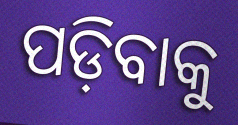
ପଡ଼ିବାକୁ